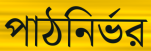
পাঠনির্ভর